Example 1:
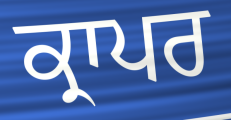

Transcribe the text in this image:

ਕ੍ਰਾਪਰ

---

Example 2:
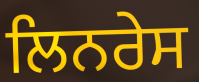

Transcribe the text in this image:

ਲਿਨਰੇਸ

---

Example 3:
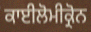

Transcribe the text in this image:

ਕਾਈਲੋਮੀਕ੍ਰੋਨ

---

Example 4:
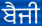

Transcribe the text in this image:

ਬੈਜੀ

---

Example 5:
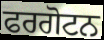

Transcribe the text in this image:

ਫਰਗੋਟਨ